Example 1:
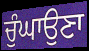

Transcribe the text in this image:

ਚੁੰਘਾਉਣਾ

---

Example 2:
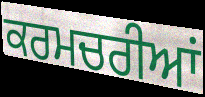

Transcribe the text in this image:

ਕਰਮਚਰੀਆਂ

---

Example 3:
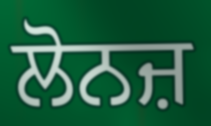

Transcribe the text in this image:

ਲੋਨਜ਼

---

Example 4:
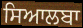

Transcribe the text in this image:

ਸਿਆਲਬਾ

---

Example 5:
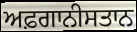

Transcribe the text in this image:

ਅਫ਼ਗਾਨੀਸਤਾਨ